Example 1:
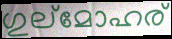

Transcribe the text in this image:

ഗുല്മോഹര്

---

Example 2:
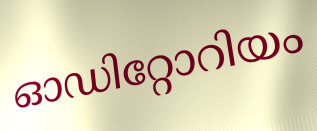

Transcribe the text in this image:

ഓഡിറ്റോറിയം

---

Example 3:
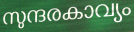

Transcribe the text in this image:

സുന്ദരകാവ്യം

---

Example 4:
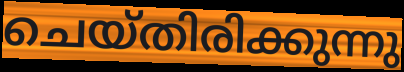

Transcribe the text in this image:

ചെയ്തിരിക്കുന്നു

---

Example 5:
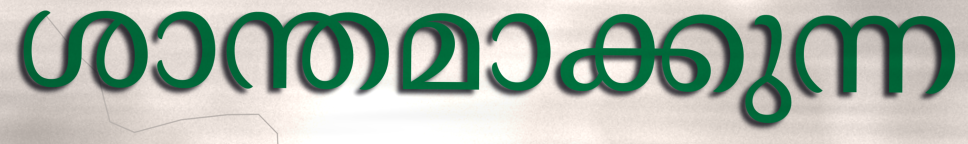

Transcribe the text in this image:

ശാന്തമാക്കുന്ന